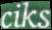
ciks